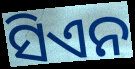
ସିଏନ